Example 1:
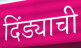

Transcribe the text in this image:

दिंड्याची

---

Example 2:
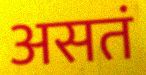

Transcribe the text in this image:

असतं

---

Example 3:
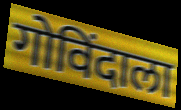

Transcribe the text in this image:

गोविंदाला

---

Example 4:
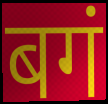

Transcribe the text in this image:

बगं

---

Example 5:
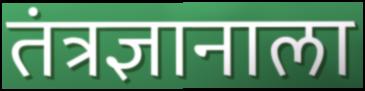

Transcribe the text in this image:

तंत्रज्ञानाला